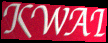
KWAI